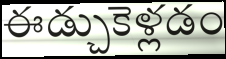
ఈడ్చుకెళ్లడం